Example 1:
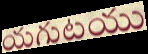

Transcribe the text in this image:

యగుటయు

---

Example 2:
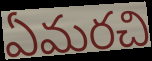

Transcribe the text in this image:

ఏమరచి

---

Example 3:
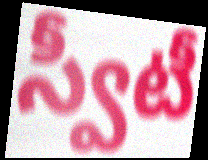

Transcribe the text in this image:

స్వీటీ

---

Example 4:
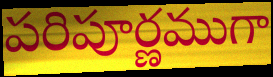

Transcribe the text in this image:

పరిపూర్ణముగా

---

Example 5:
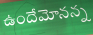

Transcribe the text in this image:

ఉందేమోనన్న